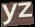
yz